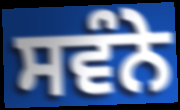
ਸਵੰਨੇ